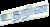
உதறின